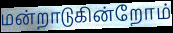
மன்றாடுகின்றோம்